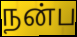
நன்ப